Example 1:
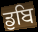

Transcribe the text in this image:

ਡੁਬਿ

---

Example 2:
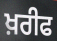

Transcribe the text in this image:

ਖ਼ਰੀਫ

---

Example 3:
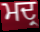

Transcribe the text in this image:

ਮਦ੍ਰ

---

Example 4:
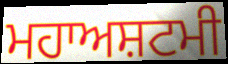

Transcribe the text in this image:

ਮਹਾਅਸ਼ਟਮੀ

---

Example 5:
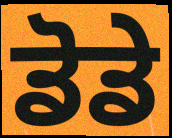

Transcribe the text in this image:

ਡੋਡੇ